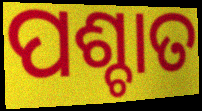
ପଶ୍ଚାତ